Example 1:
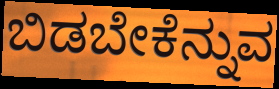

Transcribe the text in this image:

ಬಿಡಬೇಕೆನ್ನುವ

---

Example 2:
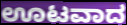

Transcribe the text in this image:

ಊಟವಾದ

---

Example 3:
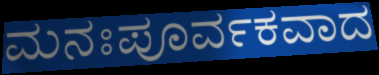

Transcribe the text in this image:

ಮನಃಪೂರ್ವಕವಾದ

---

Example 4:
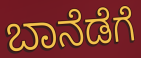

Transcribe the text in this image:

ಬಾನೆಡೆಗೆ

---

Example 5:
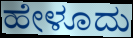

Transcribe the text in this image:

ಹೇಳೂದು